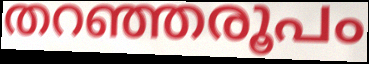
തറഞ്ഞരൂപം